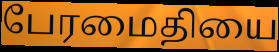
பேரமைதியை